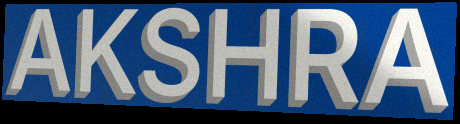
AKSHRA